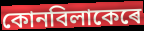
কোনবিলাকেৰে